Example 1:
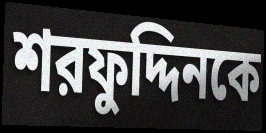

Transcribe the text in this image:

শরফুদ্দিনকে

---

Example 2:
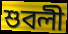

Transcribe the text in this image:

শুবলী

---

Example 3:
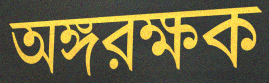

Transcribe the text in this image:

অঙ্গরক্ষক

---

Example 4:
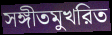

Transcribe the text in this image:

সঙ্গীতমুখরিত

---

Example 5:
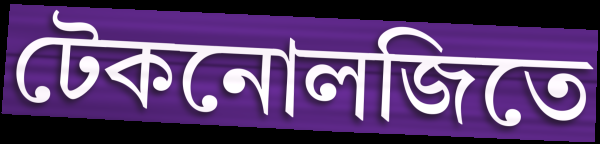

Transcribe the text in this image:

টেকনোলজিতে